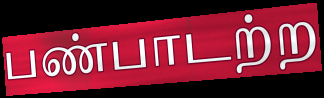
பண்பாடற்ற